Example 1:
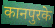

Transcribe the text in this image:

कानपुरके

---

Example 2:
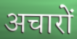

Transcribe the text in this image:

अचारों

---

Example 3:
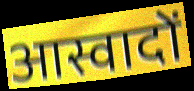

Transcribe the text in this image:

आस्वादों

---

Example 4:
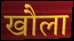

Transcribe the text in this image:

खौला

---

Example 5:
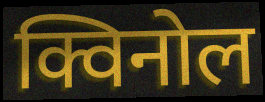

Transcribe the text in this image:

क्विनोल